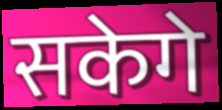
सकेगे